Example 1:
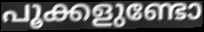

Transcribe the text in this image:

പൂക്കളുണ്ടോ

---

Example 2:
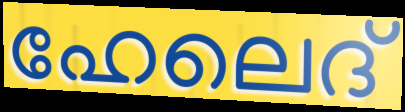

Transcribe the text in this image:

ഹേലെദ്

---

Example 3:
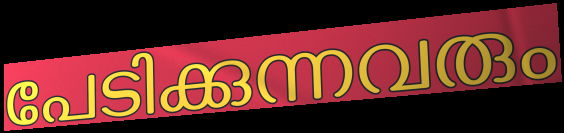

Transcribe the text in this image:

പേടിക്കുന്നവരും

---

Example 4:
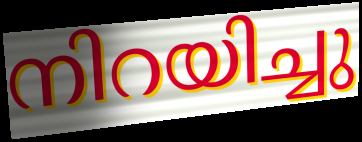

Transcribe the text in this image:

നിറയിച്ചു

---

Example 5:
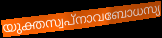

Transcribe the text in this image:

യുക്തസ്വപ്നാവബോധസ്യ